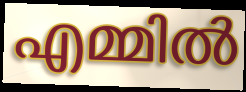
എമ്മിൽ